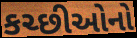
કચ્છીઓનો